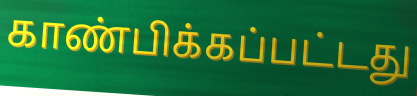
காண்பிக்கப்பட்டது